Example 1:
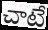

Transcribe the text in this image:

చాటే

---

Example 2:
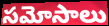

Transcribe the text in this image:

సమోసాలు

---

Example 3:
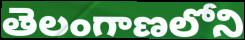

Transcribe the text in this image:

తెలంగాణలోని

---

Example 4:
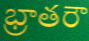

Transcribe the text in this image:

భ్రాతరౌ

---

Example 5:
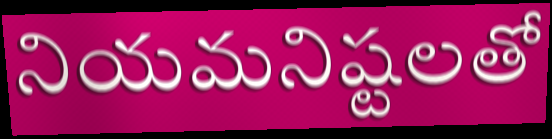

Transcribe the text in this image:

నియమనిష్టలతో